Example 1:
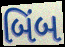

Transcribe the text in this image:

બિંબ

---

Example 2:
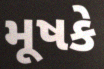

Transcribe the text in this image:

મૂષકે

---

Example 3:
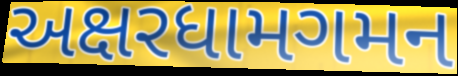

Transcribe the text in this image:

અક્ષરધામગમન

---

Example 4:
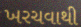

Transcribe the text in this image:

ખરચવાથી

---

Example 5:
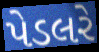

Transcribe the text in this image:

પેડલરે